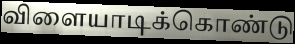
விளையாடிக்கொண்டு